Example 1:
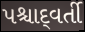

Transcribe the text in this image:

પશ્ચાદ્‌વર્તી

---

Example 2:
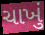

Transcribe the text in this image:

ચાખું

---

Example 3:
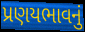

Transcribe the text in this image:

પ્રણયભાવનું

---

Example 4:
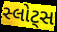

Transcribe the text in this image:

સ્લોટ્સ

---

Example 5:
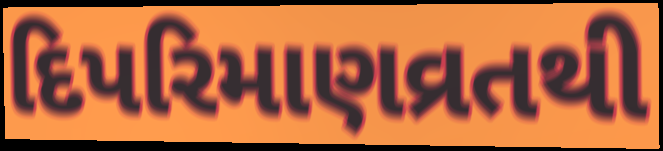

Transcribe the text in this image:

દિપરિમાણવ્રતથી